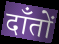
दाँतों